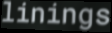
linings